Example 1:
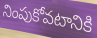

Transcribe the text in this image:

నింపుకోవటానికి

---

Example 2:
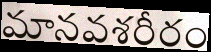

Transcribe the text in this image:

మానవశరీరం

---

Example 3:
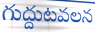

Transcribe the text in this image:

గుద్దుటవలన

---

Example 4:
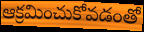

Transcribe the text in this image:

ఆక్రమించుకోవడంతో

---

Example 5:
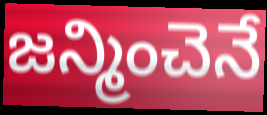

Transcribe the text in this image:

జన్మించెనే